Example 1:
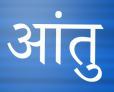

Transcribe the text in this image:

आंतु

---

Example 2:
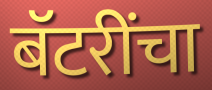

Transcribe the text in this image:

बॅटरींचा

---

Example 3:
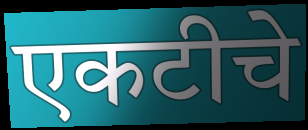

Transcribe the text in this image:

एकटीचे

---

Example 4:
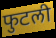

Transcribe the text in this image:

फुटली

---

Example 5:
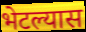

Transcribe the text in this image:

भेटल्यास